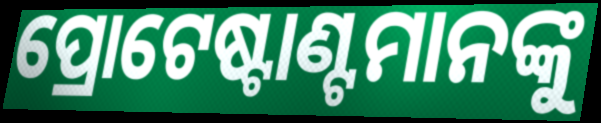
ପ୍ରୋଟେଷ୍ଟାଣ୍ଟମାନଙ୍କୁ